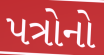
પત્રોનો